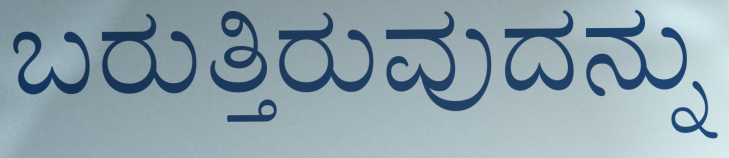
ಬರುತ್ತಿರುವುದನ್ನು